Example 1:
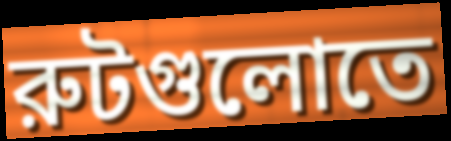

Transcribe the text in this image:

রুটগুলোতে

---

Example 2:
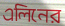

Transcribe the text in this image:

এলিনের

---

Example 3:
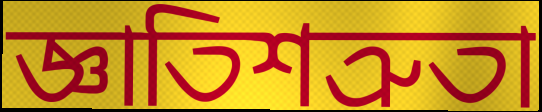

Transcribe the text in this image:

জ্ঞাতিশত্রুতা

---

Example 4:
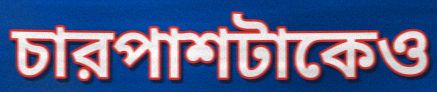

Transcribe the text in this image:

চারপাশটাকেও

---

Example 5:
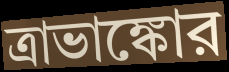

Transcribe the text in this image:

ত্রাভাঙ্কোর